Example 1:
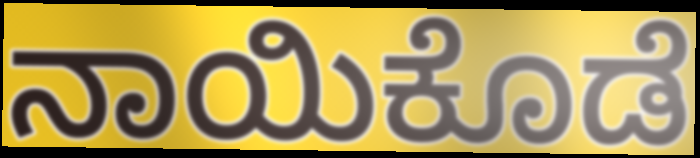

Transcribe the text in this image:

ನಾಯಿಕೊಡೆ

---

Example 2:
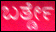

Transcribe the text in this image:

ಬರ್ತ್ಡೇ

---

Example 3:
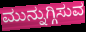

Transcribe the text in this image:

ಮುನ್ನುಗ್ಗಿಸುವ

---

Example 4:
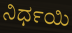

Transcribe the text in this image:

ನಿರ್ಧಯಿ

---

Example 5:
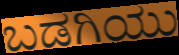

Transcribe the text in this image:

ಬಡಗಿಯು